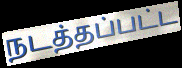
நடத்தப்பட்ட